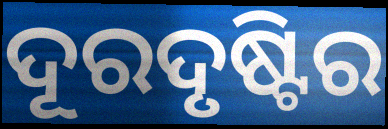
ଦୂରଦୃଷ୍ଟିର